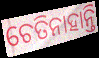
ଚେତିନାହାନ୍ତି